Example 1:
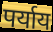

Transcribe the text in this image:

पर्याय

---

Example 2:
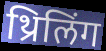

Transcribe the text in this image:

थ्रिलिंग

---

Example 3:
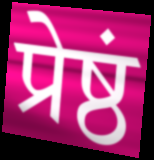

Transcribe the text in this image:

प्रेष्ठं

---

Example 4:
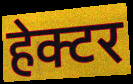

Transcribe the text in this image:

हेक्टर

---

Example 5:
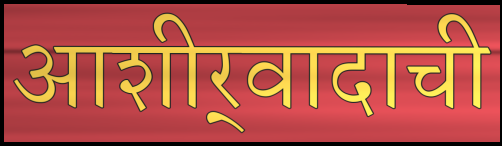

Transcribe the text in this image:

आशीर्वादाची